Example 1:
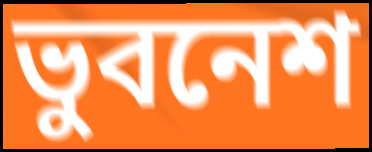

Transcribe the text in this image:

ভুবনেশ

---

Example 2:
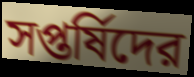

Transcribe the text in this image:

সপ্তর্ষিদের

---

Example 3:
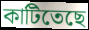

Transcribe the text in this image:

কাটিতেছে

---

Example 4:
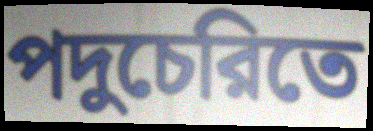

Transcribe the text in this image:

পদুচেরিতে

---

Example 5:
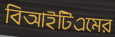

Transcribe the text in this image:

বিআইটিএমের